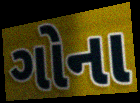
ગોના